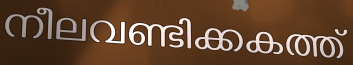
നീലവണ്ടിക്കകത്ത്